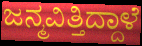
ಜನ್ಮವಿತ್ತಿದ್ದಾಳೆ